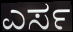
ಎರ್ಸ